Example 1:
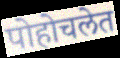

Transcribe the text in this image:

पोहोचलेत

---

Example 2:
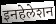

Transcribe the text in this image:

इनहेलेशन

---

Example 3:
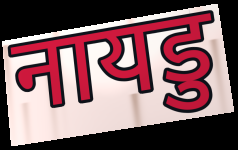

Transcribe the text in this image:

नायडु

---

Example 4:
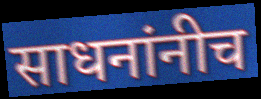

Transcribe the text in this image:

साधनांनीच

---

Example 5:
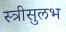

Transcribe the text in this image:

स्त्रीसुलभ